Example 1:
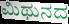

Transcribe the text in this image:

ಮಿಥುನದ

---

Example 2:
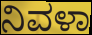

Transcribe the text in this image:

ನಿವಳಾ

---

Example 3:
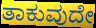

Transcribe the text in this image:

ತಾಕುವುದೇ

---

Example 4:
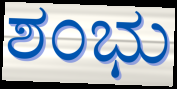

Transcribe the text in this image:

ಶಂಭು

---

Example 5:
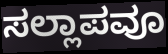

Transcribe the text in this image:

ಸಲ್ಲಾಪವೂ